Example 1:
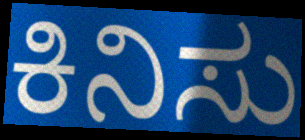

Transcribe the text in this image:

ಕಿನಿಸು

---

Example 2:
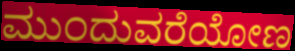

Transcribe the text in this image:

ಮುಂದುವರೆಯೋಣ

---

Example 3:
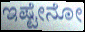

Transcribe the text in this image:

ಇಷ್ಟೇನೋ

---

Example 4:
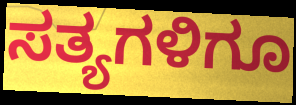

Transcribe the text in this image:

ಸತ್ಯಗಳಿಗೂ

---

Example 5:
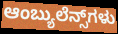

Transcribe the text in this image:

ಆಂಬ್ಯುಲೆನ್ಸ್‌ಗಳು